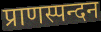
प्राणस्पन्दन